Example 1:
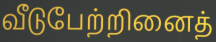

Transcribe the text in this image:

வீடுபேற்றினைத்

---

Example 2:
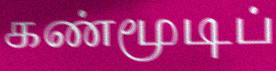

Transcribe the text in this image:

கண்மூடிப்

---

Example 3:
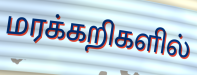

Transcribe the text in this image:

மரக்கறிகளில்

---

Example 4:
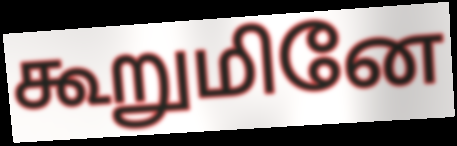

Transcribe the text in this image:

கூறுமினே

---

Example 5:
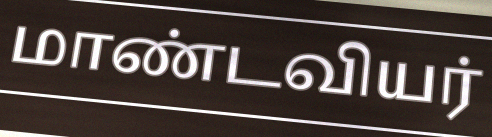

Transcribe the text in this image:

மாண்டவியர்